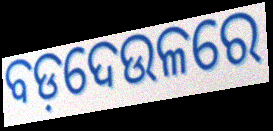
ବଡ଼ଦେଉଳରେ